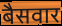
बैसवार